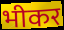
भीकर